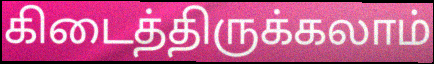
கிடைத்திருக்கலாம்